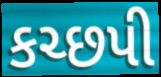
કચ્છપી